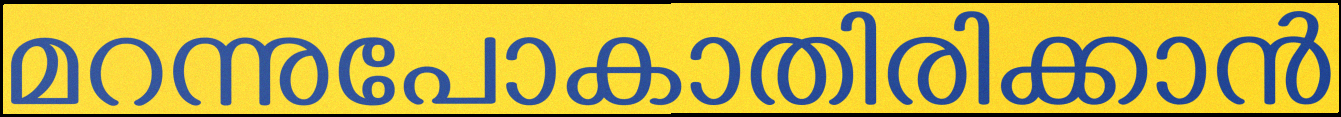
മറന്നുപോകാതിരിക്കാൻ